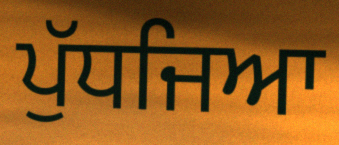
ਪੁੱਧਜਿਆ